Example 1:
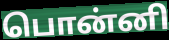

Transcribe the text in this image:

பொன்னி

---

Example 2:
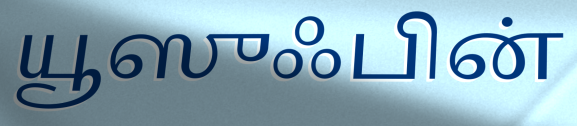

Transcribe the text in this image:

யூஸுஃபின்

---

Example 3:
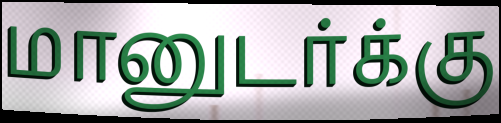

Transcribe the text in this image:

மானுடர்க்கு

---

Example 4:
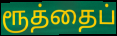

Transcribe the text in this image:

ரூத்தைப்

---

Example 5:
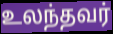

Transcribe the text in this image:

உலந்தவர்